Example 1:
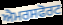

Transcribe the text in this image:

ਐਮਰਸਫੋਰਟ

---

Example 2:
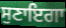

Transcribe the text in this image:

ਸੁਣਾਇਗਾ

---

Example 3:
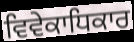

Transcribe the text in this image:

ਵਿਵੇਕਾਧਿਕਾਰ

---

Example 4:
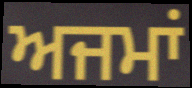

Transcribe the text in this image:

ਅਜਮਾਂ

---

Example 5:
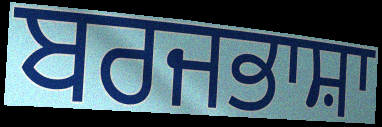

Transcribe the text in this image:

ਬਰਜਭਾਸ਼ਾ